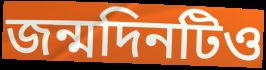
জন্মদিনটিও